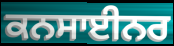
ਕਨਸਾਈਨਰ